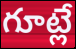
గూట్లే